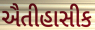
ઐતીહાસીક